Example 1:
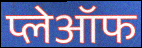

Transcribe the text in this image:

प्‍लेऑफ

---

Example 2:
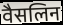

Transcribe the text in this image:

वैसलिन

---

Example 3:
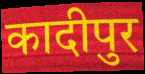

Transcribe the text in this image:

कादीपुर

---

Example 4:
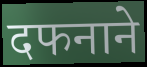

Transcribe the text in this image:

दफनाने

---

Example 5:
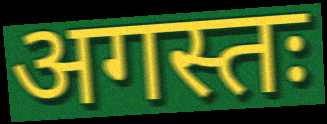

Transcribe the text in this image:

अगस्तः